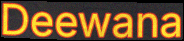
Deewana